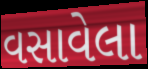
વસાવેલા